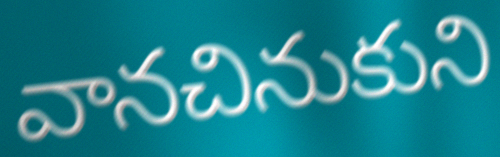
వానచినుకుని